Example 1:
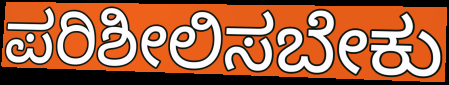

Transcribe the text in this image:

ಪರಿಶೀಲಿಸಬೇಕು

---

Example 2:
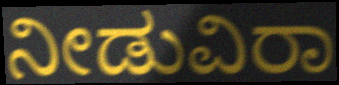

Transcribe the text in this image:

ನೀಡುವಿರಾ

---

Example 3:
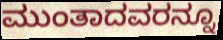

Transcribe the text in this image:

ಮುಂತಾದವರನ್ನೂ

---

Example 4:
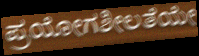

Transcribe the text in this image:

ಪ್ರಯೋಗಶೀಲತೆಯೇ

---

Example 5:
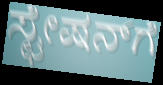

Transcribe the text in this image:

ಸ್ಟೇಷನ್‍ಗೆ